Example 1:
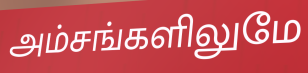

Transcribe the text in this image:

அம்சங்களிலுமே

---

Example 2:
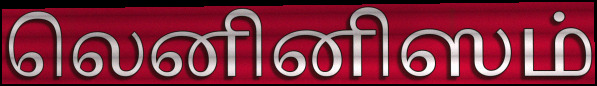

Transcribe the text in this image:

லெனினிஸம்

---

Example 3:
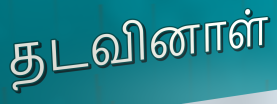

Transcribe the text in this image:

தடவினாள்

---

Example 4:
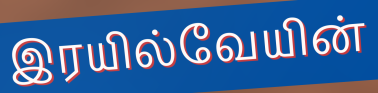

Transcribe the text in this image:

இரயில்வேயின்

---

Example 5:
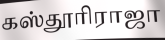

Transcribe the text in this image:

கஸ்தூரிராஜா